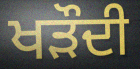
ਖੜੌਦੀ